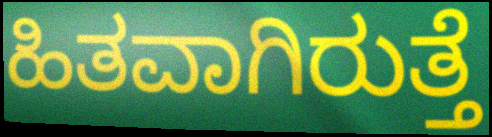
ಹಿತವಾಗಿರುತ್ತೆ